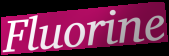
Fluorine